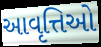
આવૃત્તિઓ